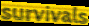
survivals